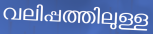
വലിപ്പത്തിലുള്ള